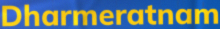
Dharmeratnam